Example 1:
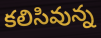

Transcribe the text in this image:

కలిసివున్న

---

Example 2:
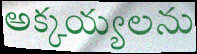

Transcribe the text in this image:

అక్కయ్యలను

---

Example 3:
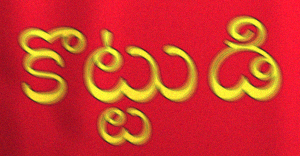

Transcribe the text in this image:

కొట్టుడి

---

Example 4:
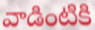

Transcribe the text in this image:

వాడింటికి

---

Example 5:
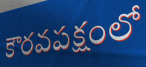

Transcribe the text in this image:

కౌరవపక్షంలో